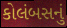
કોલંબસનું